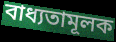
বাধ্যতামূলক